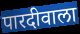
पारदीवाला